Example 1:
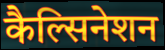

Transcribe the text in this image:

कैल्सिनेशन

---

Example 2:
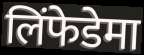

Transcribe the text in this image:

लिंफेडेमा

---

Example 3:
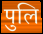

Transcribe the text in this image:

पुलि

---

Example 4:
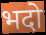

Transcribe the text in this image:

भदो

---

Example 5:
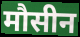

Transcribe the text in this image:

मौसीन